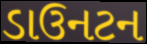
ડાઉનટન